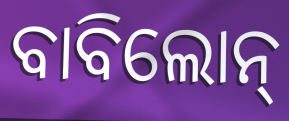
ବାବିଲୋନ୍